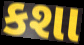
કશા